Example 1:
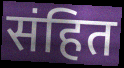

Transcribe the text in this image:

संहित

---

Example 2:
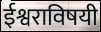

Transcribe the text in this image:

ईश्वराविषयी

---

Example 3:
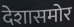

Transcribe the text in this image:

देशासमोर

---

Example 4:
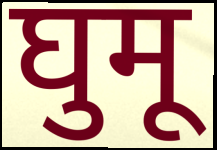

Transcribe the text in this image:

घुमू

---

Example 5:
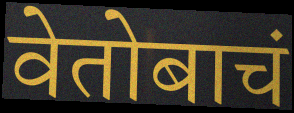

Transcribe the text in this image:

वेतोबाचं